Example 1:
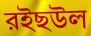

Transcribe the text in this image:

রইছউল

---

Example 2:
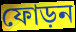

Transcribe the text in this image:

ফোড়ন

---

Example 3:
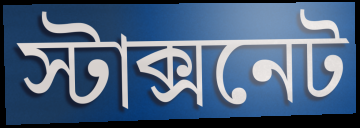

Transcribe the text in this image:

স্টাক্সনেট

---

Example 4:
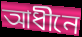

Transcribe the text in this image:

আধীনে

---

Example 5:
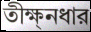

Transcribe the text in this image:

তীক্ষ্নধার